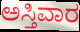
ಅಸ್ತಿವಾರ